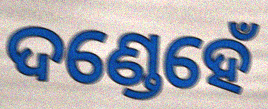
ଦଣ୍ଡେହେଁ